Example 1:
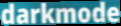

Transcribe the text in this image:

darkmode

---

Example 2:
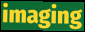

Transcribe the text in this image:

imaging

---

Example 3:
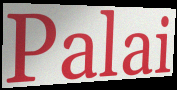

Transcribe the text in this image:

Palai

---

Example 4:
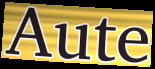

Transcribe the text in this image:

Aute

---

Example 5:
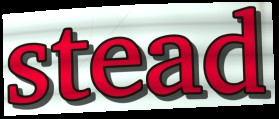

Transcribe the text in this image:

stead